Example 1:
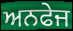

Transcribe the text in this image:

ਅਨਫੇਜ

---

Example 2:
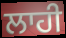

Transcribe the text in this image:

ਲਾਹੀ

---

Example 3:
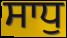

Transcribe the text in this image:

ਸਾਧੁ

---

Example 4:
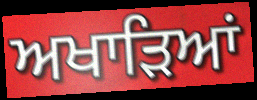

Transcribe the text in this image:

ਅਖਾੜਿਆਂ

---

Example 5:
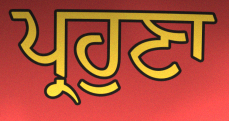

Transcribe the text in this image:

ਪ੍ਰਹੁਣਾ